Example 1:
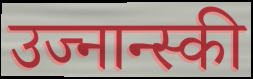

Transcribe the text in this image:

उज्नान्स्की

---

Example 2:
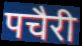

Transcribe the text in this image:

पचैरी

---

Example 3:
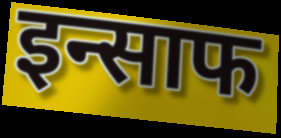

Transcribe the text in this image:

इन्साफ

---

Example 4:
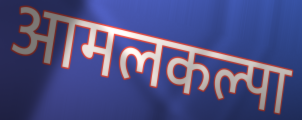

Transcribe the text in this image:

आमलकल्पा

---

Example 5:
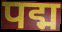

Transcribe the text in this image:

पद्म